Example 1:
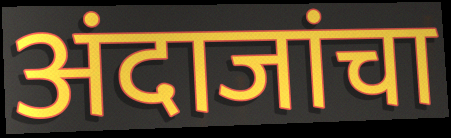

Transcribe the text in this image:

अंदाजांचा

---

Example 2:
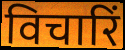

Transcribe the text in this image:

विचारिं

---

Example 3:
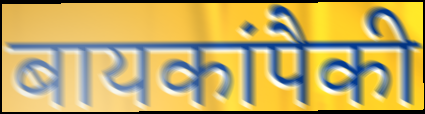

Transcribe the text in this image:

बायकांपैकी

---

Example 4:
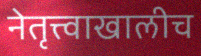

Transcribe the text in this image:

नेतृत्त्वाखालीच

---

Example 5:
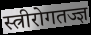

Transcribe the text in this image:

स्‍त्रीरोगतज्‍ज्ञ